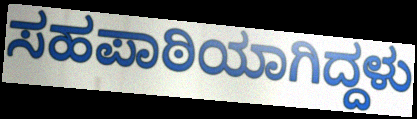
ಸಹಪಾಠಿಯಾಗಿದ್ದಳು